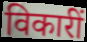
विकारीं